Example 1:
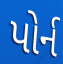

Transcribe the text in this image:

પોર્ન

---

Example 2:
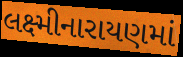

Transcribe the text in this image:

લક્ષ્મીનારાયણમાં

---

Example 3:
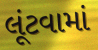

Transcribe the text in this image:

લૂંટવામાં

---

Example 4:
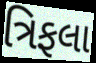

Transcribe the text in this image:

ત્રિફલા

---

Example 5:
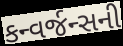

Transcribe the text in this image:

કન્વર્જન્સની